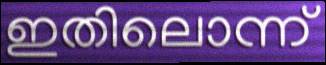
ഇതിലൊന്ന്